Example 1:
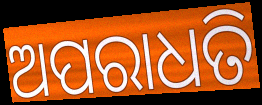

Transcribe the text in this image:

ଅପରାଧତି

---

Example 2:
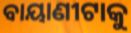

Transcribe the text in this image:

ବାୟାଣୀଟାକୁ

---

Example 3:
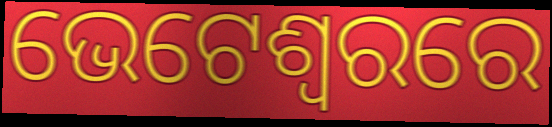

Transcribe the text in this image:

ଭେଟେଶ୍ୱରରେ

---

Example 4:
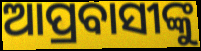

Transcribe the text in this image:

ଆପ୍ରବାସୀଙ୍କୁ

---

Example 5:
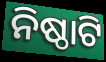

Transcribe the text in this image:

ନିଷ୍ଠାଟି